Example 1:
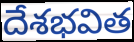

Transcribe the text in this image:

దేశభవిత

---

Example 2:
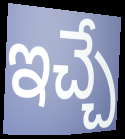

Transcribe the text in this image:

ఇచ్చే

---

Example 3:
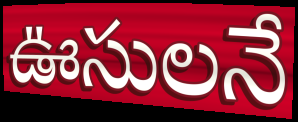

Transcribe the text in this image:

ఊసులనే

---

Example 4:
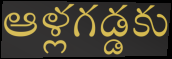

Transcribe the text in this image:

ఆళ్లగడ్డకు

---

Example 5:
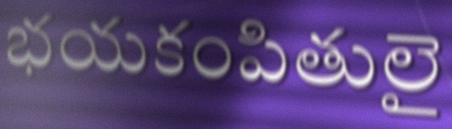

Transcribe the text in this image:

భయకంపితులై